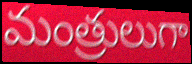
మంత్రులుగా